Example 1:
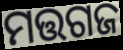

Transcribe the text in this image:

ମତ୍ତଗଜ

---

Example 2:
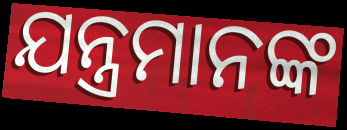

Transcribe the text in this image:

ଯନ୍ତ୍ରମାନଙ୍କ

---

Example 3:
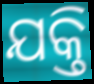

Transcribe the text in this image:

ଯକ୍ତି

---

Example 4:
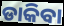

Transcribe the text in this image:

ଡାକିବା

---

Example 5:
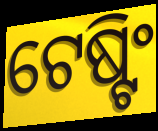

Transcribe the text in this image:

ଟେଷ୍ଟିଂ